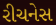
રીચનેસ